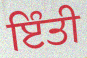
ਇੰਤੀ